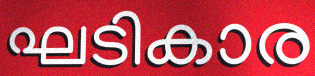
ഘടികാര